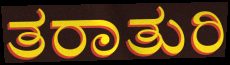
ತರಾತುರಿ